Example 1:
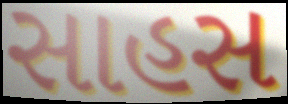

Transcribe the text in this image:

સાહસ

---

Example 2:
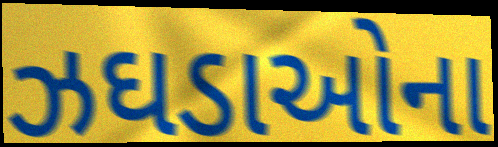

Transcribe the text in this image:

ઝઘડાઓના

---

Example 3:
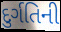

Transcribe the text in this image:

દુર્ગતિની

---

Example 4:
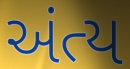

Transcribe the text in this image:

અંત્ય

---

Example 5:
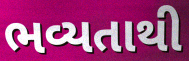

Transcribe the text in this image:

ભવ્યતાથી